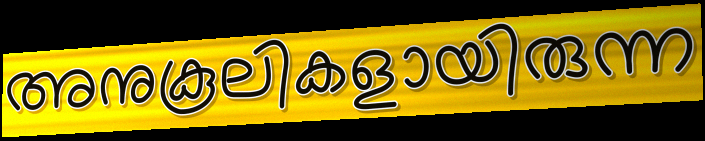
അനുകൂലികളായിരുന്ന